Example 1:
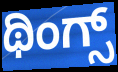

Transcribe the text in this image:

ಥಿಂಗ್ಸ್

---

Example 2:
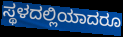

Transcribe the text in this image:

ಸ್ಥಳದಲ್ಲಿಯಾದರೂ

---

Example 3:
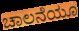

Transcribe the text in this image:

ಚಾಲನೆಯೂ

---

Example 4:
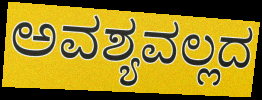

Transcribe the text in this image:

ಅವಶ್ಯವಲ್ಲದ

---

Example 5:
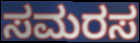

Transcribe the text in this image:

ಸಮರಸ